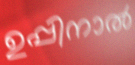
ഉപ്പിനാൽ